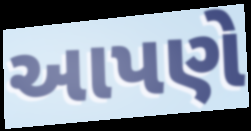
આપણે